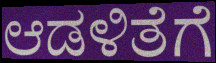
ಆಡಳಿತೆಗೆ